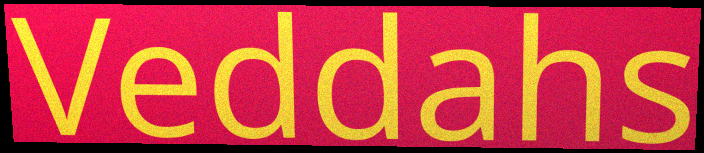
Veddahs